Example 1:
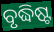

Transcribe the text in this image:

ବୃଦ୍ଧିଷ୍ଟ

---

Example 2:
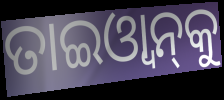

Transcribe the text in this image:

ତାଇଓ୍ବାନ୍‌କୁ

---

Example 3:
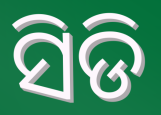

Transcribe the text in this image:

ସିଡି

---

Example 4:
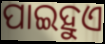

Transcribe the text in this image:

ପାଇହୁଏ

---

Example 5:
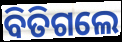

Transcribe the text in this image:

ବିତିଗଲେ